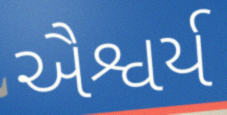
ઐશ્વર્ય